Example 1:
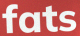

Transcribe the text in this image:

fats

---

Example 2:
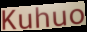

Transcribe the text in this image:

Kuhuo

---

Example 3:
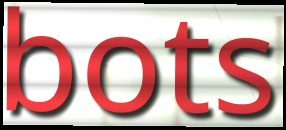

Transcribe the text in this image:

bots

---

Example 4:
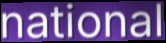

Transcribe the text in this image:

national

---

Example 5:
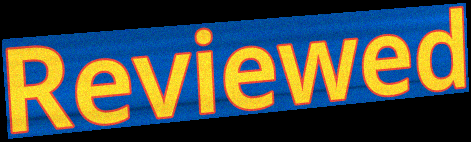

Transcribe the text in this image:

Reviewed